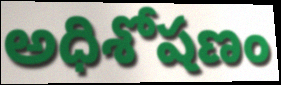
అధిశోషణం